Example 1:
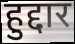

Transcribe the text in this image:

हुद्दार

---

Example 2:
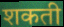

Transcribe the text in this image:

शकती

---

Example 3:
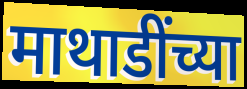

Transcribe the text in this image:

माथाडींच्या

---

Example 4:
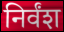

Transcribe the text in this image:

निर्वंश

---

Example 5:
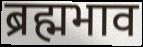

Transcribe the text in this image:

ब्रह्मभाव